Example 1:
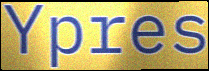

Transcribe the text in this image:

Ypres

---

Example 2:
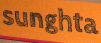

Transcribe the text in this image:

sunghta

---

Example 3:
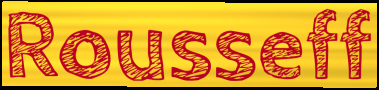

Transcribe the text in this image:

Rousseff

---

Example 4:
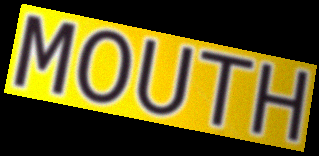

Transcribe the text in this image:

MOUTH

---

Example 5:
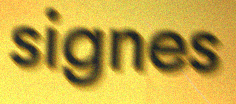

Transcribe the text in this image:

signes